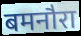
बमनौरा